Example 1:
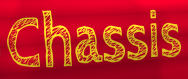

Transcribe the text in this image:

Chassis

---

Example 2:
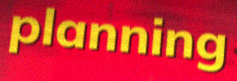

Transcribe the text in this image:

planning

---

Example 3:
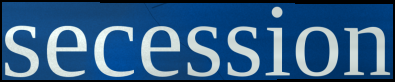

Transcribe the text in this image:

secession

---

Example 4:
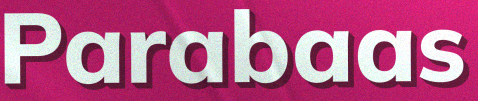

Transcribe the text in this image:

Parabaas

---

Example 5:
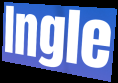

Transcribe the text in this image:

Ingle